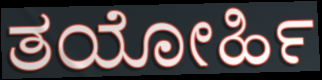
ತಯೋರ್ಹಿ